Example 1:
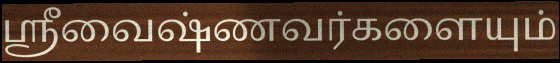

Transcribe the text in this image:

ஸ்ரீவைஷ்ணவர்களையும்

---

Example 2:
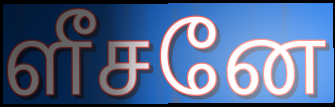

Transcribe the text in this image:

ளீசனே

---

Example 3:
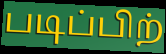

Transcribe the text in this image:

படிப்பிற்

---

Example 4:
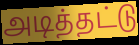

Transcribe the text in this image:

அடித்தட்டு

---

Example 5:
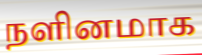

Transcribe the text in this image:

நளினமாக